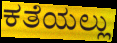
ಕತೆಯಲ್ಲು